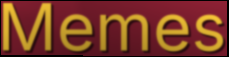
Memes